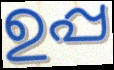
ഉപ്പ